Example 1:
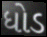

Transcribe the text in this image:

ધોડ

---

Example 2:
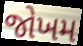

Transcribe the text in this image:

જોખમ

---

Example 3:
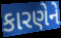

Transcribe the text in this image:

કારણેને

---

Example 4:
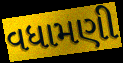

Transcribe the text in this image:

વધામણી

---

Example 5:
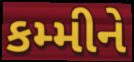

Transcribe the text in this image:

કમ્મીને